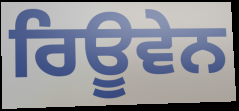
ਰਿਊਵੇਨ